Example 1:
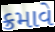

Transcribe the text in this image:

ક્રમાવે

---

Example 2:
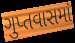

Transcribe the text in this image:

ગુપ્તવાસમાં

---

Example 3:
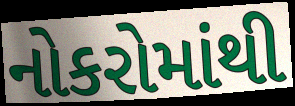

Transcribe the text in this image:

નોકરોમાંથી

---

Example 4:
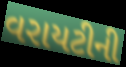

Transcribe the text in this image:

વરાયટીની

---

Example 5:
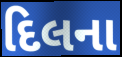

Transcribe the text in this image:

દિલના